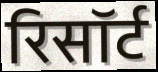
रिसॉर्ट